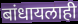
बांधायलाही